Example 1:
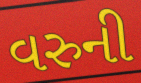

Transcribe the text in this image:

વરુની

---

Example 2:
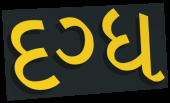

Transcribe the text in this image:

દગ્ધ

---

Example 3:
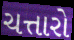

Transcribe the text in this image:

ચત્તારો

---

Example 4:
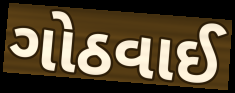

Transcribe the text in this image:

ગોઠવાઈ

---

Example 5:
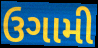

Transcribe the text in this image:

ઉગામી